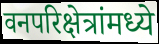
वनपरिक्षेत्रांमध्ये